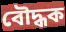
বৌদ্ধক